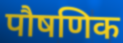
पौषणिक